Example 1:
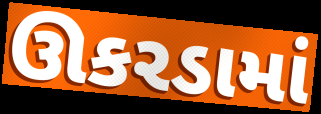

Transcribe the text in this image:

ઊકરડામાં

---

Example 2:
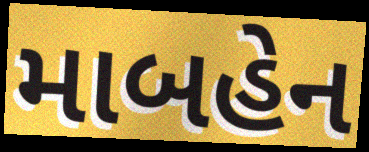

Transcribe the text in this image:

માબહેન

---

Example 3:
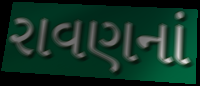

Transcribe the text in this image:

રાવણનાં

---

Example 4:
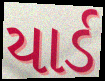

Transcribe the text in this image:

યાર્ડ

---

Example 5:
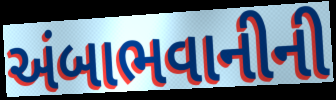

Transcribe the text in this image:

અંબાભવાનીની